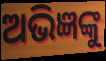
ଅଭିଜ୍ଞଙ୍କୁ